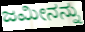
ಜಮೀನನ್ನು